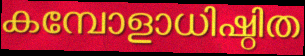
കമ്പോളാധിഷ്ഠിത